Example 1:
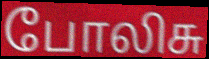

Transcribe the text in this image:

போலிசு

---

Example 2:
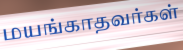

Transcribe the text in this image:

மயங்காதவர்கள்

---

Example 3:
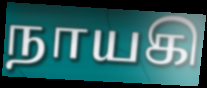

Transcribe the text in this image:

நாயகி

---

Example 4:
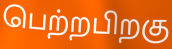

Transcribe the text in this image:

பெற்றபிறகு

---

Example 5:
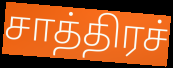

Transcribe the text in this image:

சாத்திரச்